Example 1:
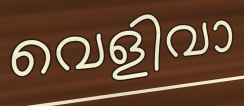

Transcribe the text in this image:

വെളിവാ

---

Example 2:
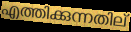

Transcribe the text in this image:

എത്തിക്കുന്നതില്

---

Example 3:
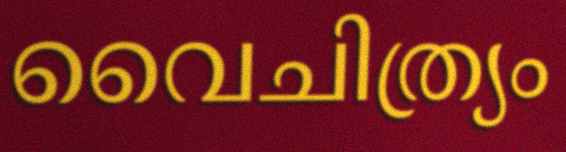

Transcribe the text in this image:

വൈചിത്ര്യം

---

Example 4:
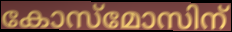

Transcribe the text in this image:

കോസ്മോസിന്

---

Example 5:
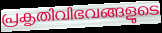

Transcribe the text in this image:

പ്രകൃതിവിഭവങ്ങളുടെ